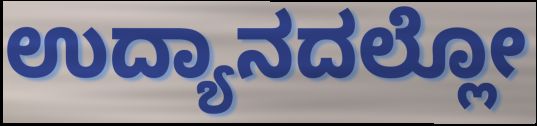
ಉದ್ಯಾನದಲ್ಲೋ